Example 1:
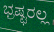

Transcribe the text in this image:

ಭ್ರಷ್ಟರಲ್ಲ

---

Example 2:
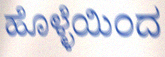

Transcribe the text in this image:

ಹೊಳ್ಳೆಯಿಂದ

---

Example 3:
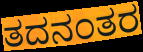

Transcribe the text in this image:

ತದನಂತರ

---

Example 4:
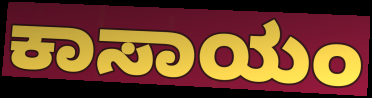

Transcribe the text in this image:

ಕಾಸಾಯಂ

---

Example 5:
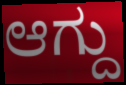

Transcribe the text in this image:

ಆಗ್ದು